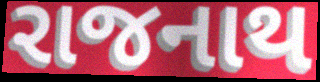
રાજનાથ